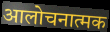
आलोचनात्मक